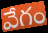
వేగం